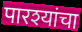
पारश्यांचा